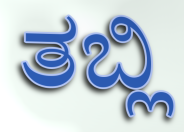
ತಬ್ಲಿ